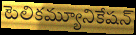
టెలికమ్యూనికేషన్